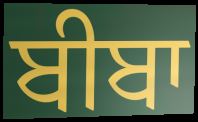
ਬੀਬਾ